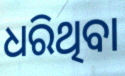
ଧରିଥିବା